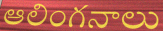
ఆలింగనాలు